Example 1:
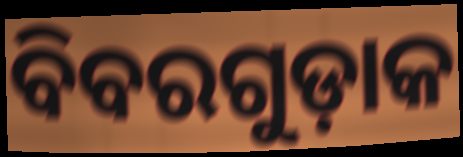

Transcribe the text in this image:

ବିବରଗୁଡ଼ାକ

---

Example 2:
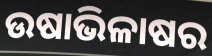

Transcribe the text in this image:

ଉଷାଭିଳାଷର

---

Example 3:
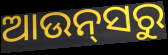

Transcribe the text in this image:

ଆଉନ୍‍ସରୁ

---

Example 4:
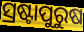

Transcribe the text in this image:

ସ୍ରଷ୍ଟାପୁରୁଷ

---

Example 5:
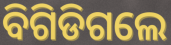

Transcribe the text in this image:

ବିଗିଡିଗଲେ